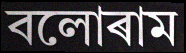
বলোৰাম